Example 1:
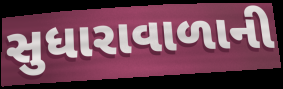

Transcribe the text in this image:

સુધારાવાળાની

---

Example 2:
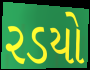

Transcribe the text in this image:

રડયો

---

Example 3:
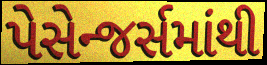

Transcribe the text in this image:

પેસેન્જર્સમાંથી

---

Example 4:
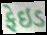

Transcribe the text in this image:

ફેઇડ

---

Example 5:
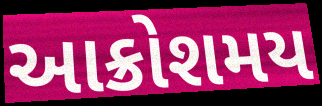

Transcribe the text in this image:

આક્રોશમય